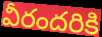
వీరందరికి